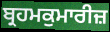
ਬ੍ਰਹਮਕੁਮਾਰੀਜ਼